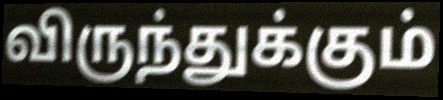
விருந்துக்கும்